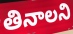
తినాలని